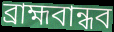
ব্রাহ্মবান্ধব